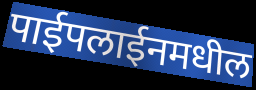
पाईपलाईनमधील